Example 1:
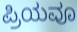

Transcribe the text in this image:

ಪ್ರಿಯವೂ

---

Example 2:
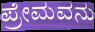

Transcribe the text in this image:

ಪ್ರೇಮವನು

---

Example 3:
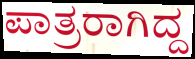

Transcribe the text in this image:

ಪಾತ್ರರಾಗಿದ್ದ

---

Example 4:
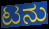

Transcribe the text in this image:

ಟನು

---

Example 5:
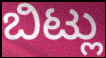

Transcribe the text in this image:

ಬಿಟ್ಲು